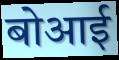
बोआई